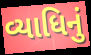
વ્યાધિનું